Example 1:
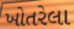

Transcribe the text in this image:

ખોતરેલા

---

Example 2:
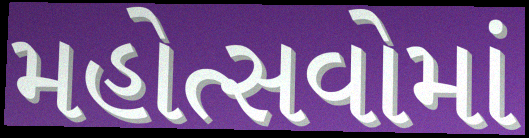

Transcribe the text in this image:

મહોત્સવોમાં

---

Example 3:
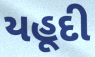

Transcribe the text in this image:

યહૂદી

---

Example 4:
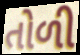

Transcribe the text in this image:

તોળી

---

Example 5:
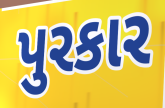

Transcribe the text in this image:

પુરકાર